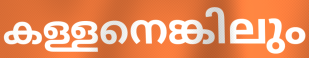
കള്ളനെങ്കിലും